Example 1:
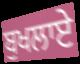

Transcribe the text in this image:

ਬੁਖਲਾਏ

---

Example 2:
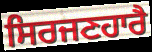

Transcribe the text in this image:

ਸਿਰਜਣਹਾਰੈ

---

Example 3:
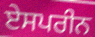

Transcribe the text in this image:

ਏਸਪਰੀਨ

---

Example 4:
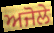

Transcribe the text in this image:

ਅਜੋਲੇ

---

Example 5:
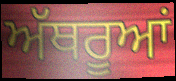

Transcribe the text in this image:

ਅੱਥਰੂਆਂ